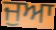
ਜੁਆ